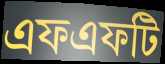
এফএফটি